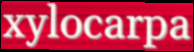
xylocarpa